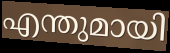
എന്തുമായി